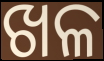
ଖଳ